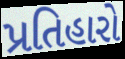
પ્રતિહારો